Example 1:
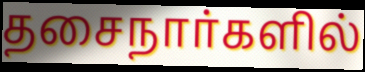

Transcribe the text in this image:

தசைநார்களில்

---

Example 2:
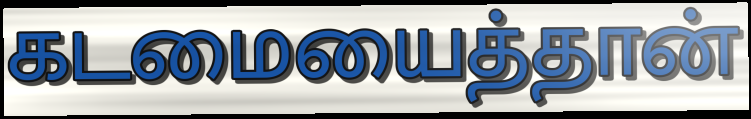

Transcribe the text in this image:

கடமையைத்தான்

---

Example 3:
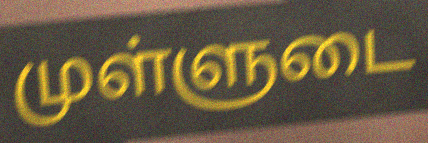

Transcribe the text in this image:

முள்ளுடை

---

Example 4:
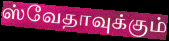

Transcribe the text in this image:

ஸ்வேதாவுக்கும்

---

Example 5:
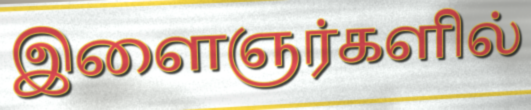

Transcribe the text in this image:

இளைஞர்களில்